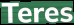
Teres